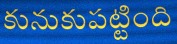
కునుకుపట్టింది